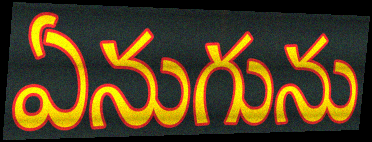
ఏనుగును